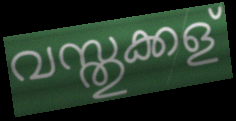
വസ്തുക്കള്